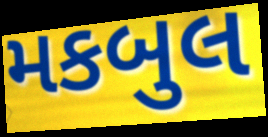
મકબુલ